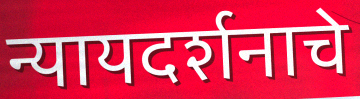
न्यायदर्शनाचे